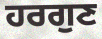
ਹਰਗੁਣ